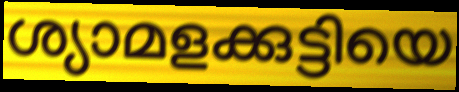
ശ്യാമളക്കുട്ടിയെ